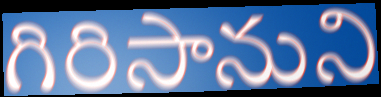
గిరిసానుని